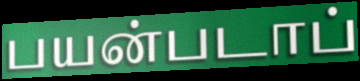
பயன்படாப்